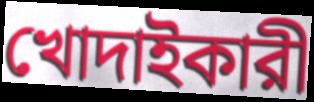
খোদাইকারী